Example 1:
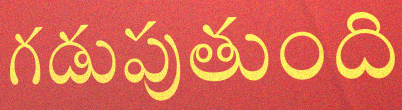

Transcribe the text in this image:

గడుపుతుంది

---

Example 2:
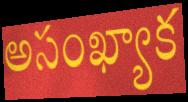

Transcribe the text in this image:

అసంఖ్యాక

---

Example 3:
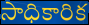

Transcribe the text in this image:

సాధికారిక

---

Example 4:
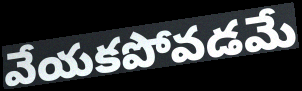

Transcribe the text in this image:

వేయకపోవడమే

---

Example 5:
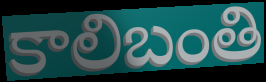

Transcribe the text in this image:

కాలిబంతి